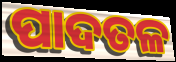
ପାଦତଳ